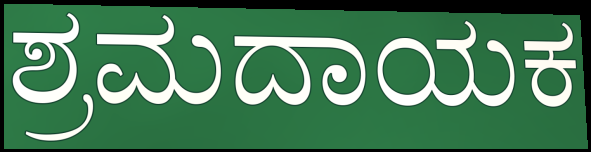
ಶ್ರಮದಾಯಕ